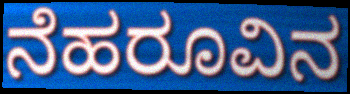
ನೆಹರೂವಿನ